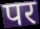
पर